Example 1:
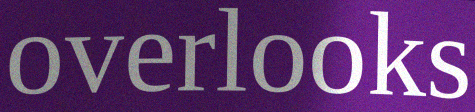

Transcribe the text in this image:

overlooks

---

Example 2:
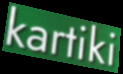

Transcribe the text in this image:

kartiki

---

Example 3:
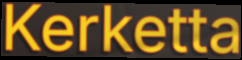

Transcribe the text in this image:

Kerketta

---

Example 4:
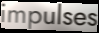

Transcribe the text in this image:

impulses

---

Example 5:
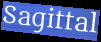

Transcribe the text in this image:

Sagittal